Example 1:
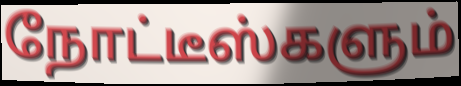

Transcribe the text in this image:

நோட்டீஸ்களும்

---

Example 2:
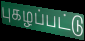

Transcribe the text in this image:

புகழப்பட்டு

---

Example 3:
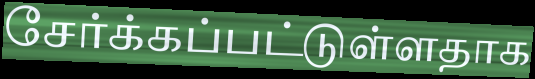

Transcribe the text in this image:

சேர்க்கப்பட்டுள்ளதாக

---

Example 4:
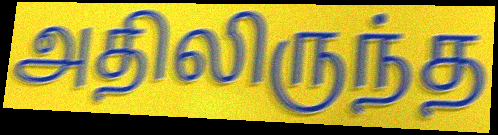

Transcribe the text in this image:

அதிலிருந்த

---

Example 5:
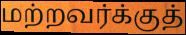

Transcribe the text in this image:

மற்றவர்க்குத்